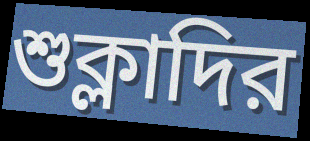
শুক্লাদির